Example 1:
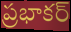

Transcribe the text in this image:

ప్రభాకర్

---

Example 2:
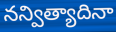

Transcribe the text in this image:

నన్విత్యాదినా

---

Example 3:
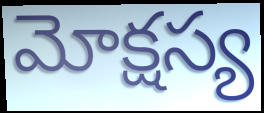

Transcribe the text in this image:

మోక్షస్య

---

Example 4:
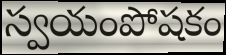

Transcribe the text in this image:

స్వయంపోషకం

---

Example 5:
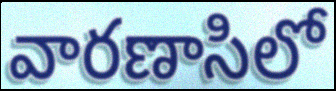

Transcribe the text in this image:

వారణాసిలో